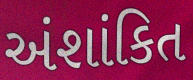
અંશાંકિત